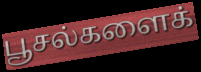
பூசல்களைக்